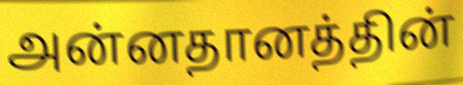
அன்னதானத்தின்